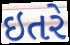
ઇતરે